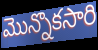
మొన్నొకసారి